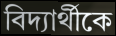
বিদ্যার্থীকে